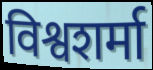
विश्वशर्मा